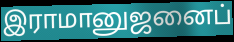
இராமானுஜனைப்